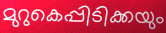
മുറുകെപ്പിടിക്കയും